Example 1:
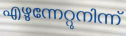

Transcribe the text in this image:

എഴുന്നേറ്റുനിന്ന്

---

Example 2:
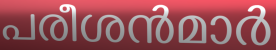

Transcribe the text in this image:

പരീശൻമാർ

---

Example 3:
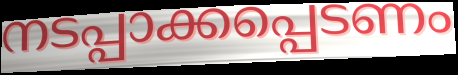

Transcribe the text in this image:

നടപ്പാക്കപ്പെടണം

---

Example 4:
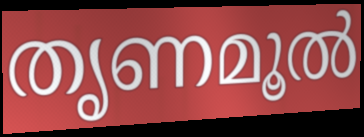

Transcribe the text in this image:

തൃണമൂൽ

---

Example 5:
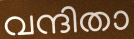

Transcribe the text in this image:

വന്ദിതാ